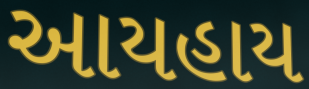
આયહાય